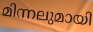
മിന്നലുമായി